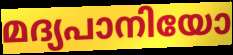
മദ്യപാനിയോ